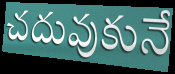
చదువుకునే